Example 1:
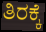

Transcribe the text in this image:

ತಿರಕ್ಕೆ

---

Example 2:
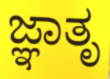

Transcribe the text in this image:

ಜ್ಞಾತೃ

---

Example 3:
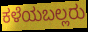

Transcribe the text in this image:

ಕಳೆಯಬಲ್ಲರು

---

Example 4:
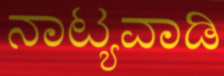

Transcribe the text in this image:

ನಾಟ್ಯವಾಡಿ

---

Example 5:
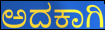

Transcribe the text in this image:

ಅದಕಾಗಿ